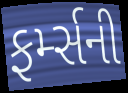
ફર્મ્સની